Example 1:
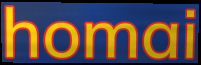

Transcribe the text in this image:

homai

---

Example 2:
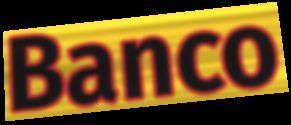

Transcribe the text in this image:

Banco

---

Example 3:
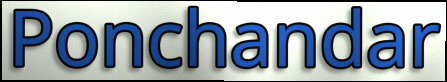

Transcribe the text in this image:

Ponchandar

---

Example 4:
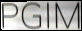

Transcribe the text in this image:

PGIM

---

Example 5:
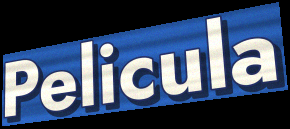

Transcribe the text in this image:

Pelicula